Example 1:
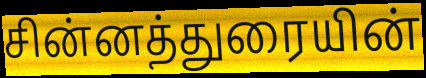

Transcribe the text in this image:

சின்னத்துரையின்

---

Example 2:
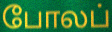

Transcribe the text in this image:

போலப்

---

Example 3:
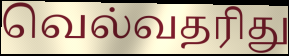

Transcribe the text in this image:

வெல்வதரிது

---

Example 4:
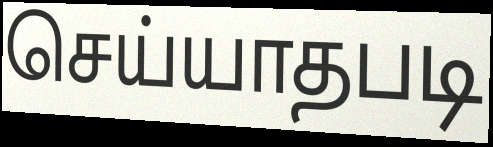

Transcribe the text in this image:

செய்யாதபடி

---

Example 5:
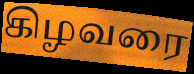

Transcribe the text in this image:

கிழவரை